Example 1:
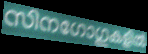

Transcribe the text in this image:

സിനഗോഗുകളിൽ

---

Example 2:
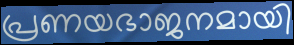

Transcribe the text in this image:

പ്രണയഭാജനമായി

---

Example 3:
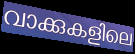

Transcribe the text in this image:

വാക്കുകളിലെ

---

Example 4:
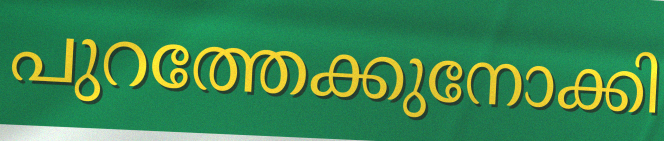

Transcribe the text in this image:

പുറത്തേക്കുനോക്കി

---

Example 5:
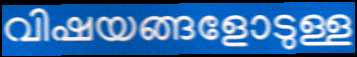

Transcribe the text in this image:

വിഷയങ്ങളോടുള്ള